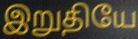
இறுதியே